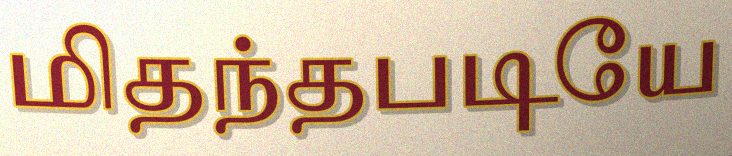
மிதந்தபடியே